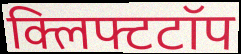
क्लिफ्टटॉप